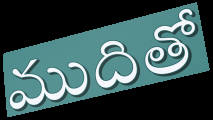
ముదితో